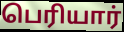
பெரியார்